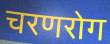
चरणरोग